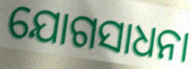
ଯୋଗସାଧନା